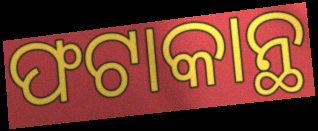
ଫଟାକାନ୍ଥ